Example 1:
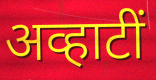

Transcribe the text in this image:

अव्हाटीं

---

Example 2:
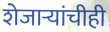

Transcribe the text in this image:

शेजाऱ्यांचीही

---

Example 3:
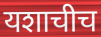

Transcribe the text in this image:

यशाचीच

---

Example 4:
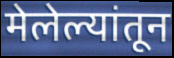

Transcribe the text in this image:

मेलेल्यांतून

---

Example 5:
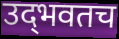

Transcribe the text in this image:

उद्‌भवतच